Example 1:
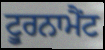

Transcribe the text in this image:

ਟੂਰਨਾਮੈਂਟ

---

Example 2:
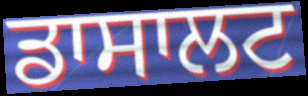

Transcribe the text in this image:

ਡਾਸਾਲਟ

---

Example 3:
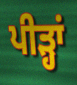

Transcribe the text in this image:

ਪੀੜ੍ਹਾਂ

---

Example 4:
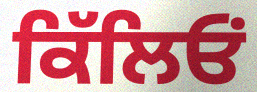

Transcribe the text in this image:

ਕਿੱਲਿਓਂ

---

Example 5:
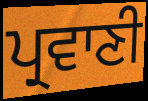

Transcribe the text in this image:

ਪ੍ਰਵਾਣੀ